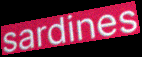
sardines